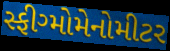
સ્ફીગ્મોમેનોમીટર